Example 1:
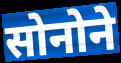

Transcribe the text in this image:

सोनोने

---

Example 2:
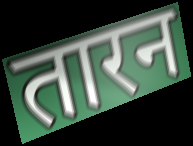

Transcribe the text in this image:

तारन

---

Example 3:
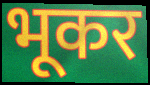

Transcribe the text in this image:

भूकर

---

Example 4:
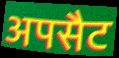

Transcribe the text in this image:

अपसैट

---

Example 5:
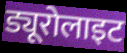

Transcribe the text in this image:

ड्यूरोलाइट